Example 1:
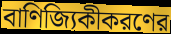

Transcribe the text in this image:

বাণিজ্যিকীকরণের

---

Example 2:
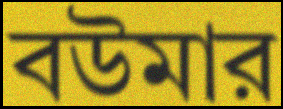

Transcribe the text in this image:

বউমার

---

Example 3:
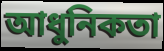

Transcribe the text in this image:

আধুনিকতা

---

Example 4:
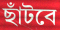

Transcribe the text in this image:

ছাঁটবে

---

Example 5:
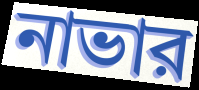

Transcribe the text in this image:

নাভার